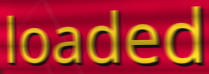
loaded